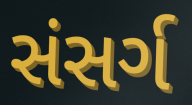
સંસર્ગ